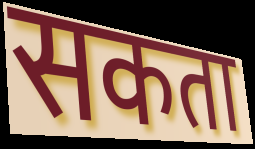
सकता